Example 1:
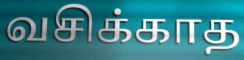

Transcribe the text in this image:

வசிக்காத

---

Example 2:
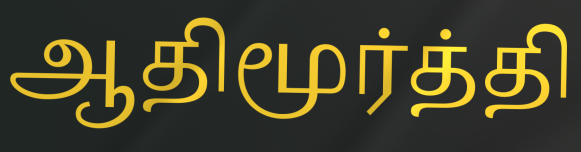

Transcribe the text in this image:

ஆதிமூர்த்தி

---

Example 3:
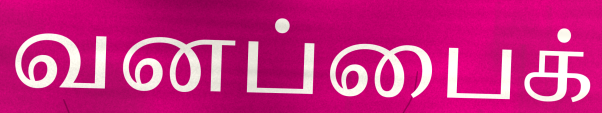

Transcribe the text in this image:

வனப்பைக்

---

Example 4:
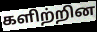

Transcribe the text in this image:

களிற்றின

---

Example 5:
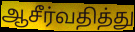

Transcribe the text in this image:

ஆசீர்வதித்து